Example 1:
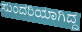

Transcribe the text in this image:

ಸುಂದರಿಯಾಗಿದ್ದ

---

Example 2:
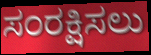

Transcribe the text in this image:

ಸಂರಕ್ಷಿಸಲು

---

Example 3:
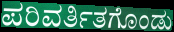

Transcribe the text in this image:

ಪರಿವರ್ತಿತಗೊಂಡು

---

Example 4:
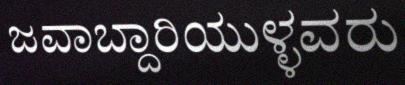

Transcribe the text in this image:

ಜವಾಬ್ದಾರಿಯುಳ್ಳವರು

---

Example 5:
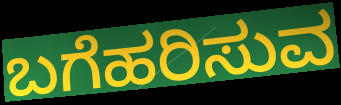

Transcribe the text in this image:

ಬಗೆಹರಿಸುವ